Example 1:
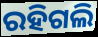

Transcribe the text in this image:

ରହିଗଲି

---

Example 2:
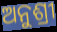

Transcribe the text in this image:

ଅନୁଶ୍ରୀ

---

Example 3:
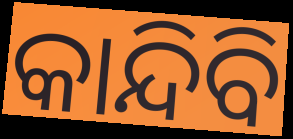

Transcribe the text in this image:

କାନ୍ଦିବି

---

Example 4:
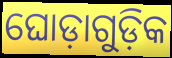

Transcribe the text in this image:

ଘୋଡ଼ାଗୁଡ଼ିକ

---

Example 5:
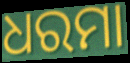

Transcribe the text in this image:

ଧରମା